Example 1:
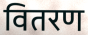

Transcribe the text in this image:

वितरण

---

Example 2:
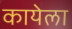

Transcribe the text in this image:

कायेला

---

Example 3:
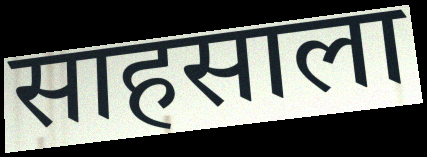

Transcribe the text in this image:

साहसाला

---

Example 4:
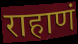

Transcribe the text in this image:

राहाणं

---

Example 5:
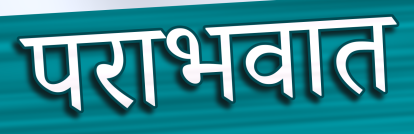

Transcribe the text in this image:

पराभवात